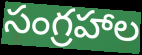
సంగ్రహాల